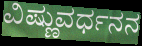
ವಿಷ್ಣುವರ್ಧನನ